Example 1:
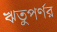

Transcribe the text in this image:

ঋতুপর্ণর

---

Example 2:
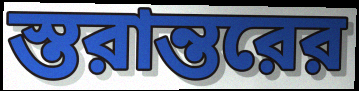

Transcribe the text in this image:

স্তরান্তরের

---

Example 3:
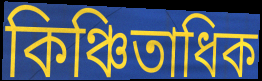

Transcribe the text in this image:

কিঞ্চিতাধিক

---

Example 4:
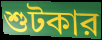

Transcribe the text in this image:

শুটকার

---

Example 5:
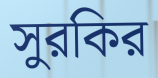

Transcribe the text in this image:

সুরকির